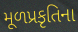
મૂળપ્રકૃતિના